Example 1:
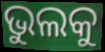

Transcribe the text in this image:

ଭୁଲକୁ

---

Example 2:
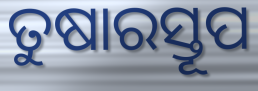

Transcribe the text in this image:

ତୁଷାରସ୍ତୂପ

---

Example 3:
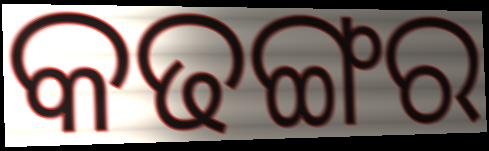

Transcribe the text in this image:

କଢଙ୍ଗର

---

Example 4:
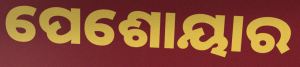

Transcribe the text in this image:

ପେଶୋୟାର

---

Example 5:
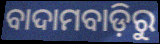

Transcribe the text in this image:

ବାଦାମବାଡ଼ିରୁ